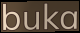
buka